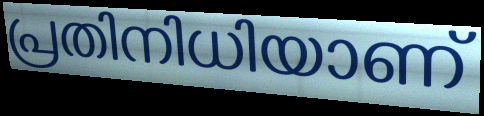
പ്രതിനിധിയാണ്